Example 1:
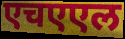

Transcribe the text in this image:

एचएएल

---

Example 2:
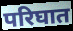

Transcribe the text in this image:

परिघात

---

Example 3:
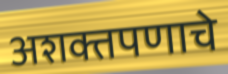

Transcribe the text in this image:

अशक्तपणाचे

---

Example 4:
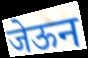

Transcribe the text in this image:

जेऊन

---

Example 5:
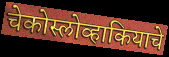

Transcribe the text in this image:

चेकोस्लोव्हाकियाचे